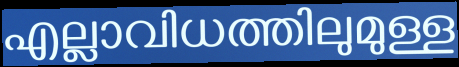
എല്ലാവിധത്തിലുമുള്ള